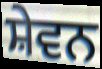
ਸ਼ੇਵਨ